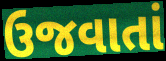
ઉજવાતાં